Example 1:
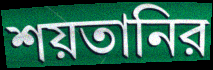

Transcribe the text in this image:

শয়তানির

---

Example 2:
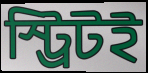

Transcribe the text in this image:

স্ট্রিটই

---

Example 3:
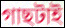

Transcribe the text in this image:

গাছটাই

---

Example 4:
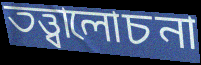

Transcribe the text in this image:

তত্ত্বালোচনা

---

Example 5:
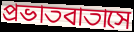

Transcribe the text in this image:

প্রভাতবাতাসে